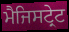
ਮੈਜਿਸਟ੍ਰੇਟ